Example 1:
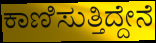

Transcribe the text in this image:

ಕಾಣಿಸುತ್ತಿದ್ದೇನೆ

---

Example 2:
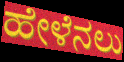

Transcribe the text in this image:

ಹೇಳೆನಲು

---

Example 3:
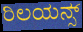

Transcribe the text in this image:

ರಿಲಯನ್ಸ್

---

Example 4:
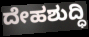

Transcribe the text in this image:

ದೇಹಶುದ್ಧಿ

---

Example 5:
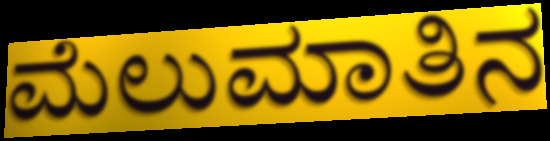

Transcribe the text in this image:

ಮೆಲುಮಾತಿನ